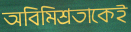
অবিমিশ্রতাকেই